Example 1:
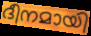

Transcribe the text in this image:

ദീനമായി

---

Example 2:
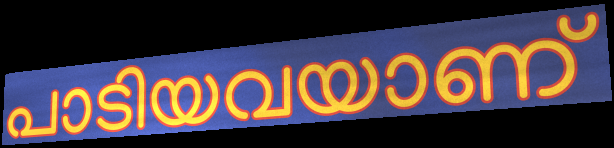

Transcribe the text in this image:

പാടിയവയാണ്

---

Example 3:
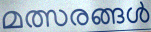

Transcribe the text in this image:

മത്സരങ്ങൾ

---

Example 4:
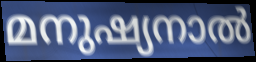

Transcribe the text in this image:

മനുഷ്യനാൽ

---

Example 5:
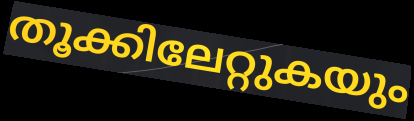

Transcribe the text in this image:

തൂക്കിലേറ്റുകയും